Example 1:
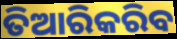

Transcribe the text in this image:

ତିଆରିକରିବ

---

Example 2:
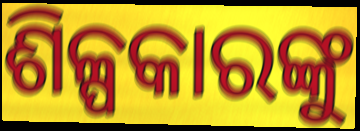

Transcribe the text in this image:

ଶିଳ୍ପକାରଙ୍କୁ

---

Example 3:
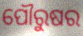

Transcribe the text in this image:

ପୌରୁଷର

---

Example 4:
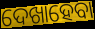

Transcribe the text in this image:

ଦେଖାହେବା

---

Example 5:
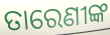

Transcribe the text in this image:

ତାରେଣୀଙ୍କ